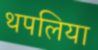
थपलिया